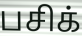
பசிக்